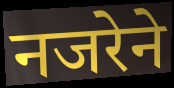
नजरेने